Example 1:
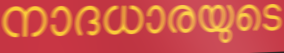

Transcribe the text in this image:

നാദധാരയുടെ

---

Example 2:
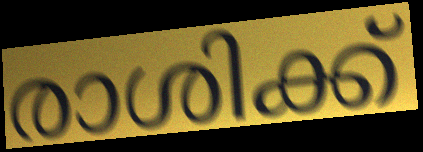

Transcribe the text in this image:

രാശിക്ക്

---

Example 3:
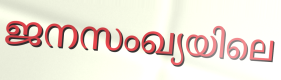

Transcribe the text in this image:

ജനസംഖ്യയിലെ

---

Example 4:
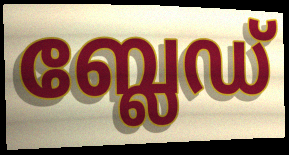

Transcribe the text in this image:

ബ്ലേഡ്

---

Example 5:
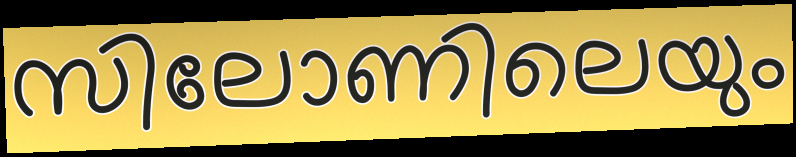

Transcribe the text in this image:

സിലോണിലെയും